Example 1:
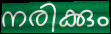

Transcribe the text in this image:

നരിക്കും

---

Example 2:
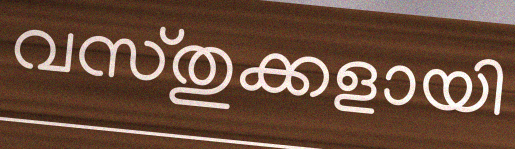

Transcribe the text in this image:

വസ്തുക്കളായി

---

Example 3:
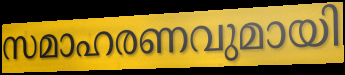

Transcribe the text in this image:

സമാഹരണവുമായി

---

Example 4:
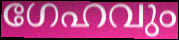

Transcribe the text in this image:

ഗേഹവും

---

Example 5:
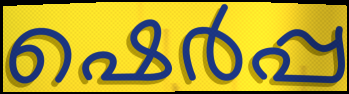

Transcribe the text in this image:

ഷെർപ്പ